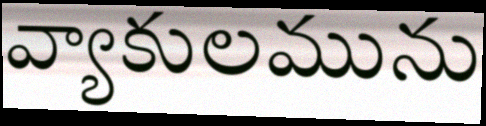
వ్యాకులమును